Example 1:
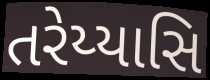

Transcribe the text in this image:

તરેય્યાસિ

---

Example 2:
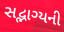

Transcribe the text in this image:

સદ્ભાગ્યની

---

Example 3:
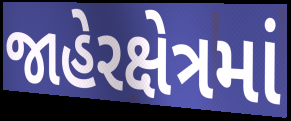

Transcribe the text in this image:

જાહેરક્ષેત્રમાં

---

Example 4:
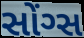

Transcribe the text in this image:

સોંગ્સ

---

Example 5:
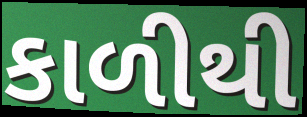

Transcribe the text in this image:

કાળીથી